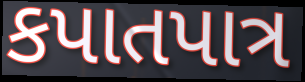
કપાતપાત્ર